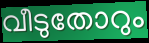
വീടുതോറും